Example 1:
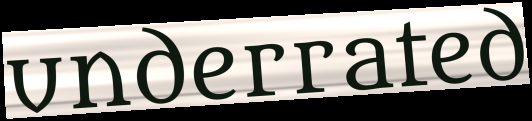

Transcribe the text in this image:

underrated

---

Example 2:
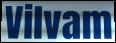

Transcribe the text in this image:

Vilvam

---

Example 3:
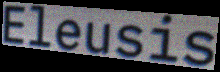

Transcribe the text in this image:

Eleusis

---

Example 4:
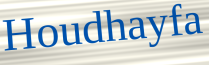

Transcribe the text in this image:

Houdhayfa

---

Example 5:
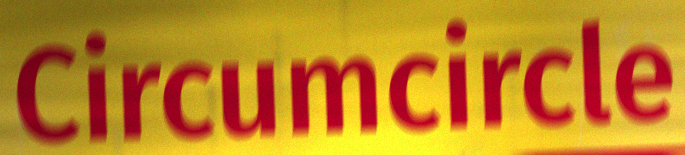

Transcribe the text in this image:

Circumcircle